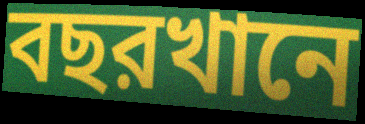
বছরখানে